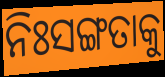
ନିଃସଙ୍ଗତାକୁ